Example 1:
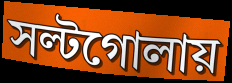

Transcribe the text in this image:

সল্টগোলায়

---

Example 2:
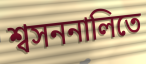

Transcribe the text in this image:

শ্বসননালিতে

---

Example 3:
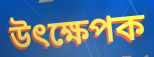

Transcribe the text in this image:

উৎক্ষেপক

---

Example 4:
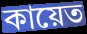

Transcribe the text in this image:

কায়েত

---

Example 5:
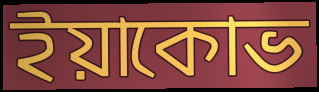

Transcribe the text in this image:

ইয়াকোভ